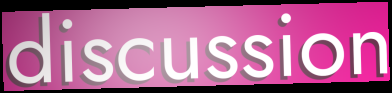
discussion